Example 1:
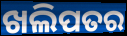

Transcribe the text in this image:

ଖଲିପତର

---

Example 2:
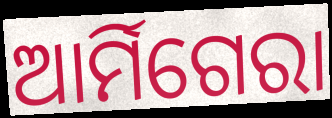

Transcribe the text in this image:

ଆର୍ମିଗେରା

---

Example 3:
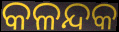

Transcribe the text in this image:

କଳନ୍ଦକ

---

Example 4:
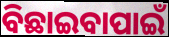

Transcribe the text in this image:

ବିଛାଇବାପାଇଁ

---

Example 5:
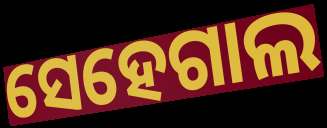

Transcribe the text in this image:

ସେହେଗାଲ